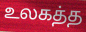
உலகத்த